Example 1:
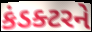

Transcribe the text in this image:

કંડક્ટરને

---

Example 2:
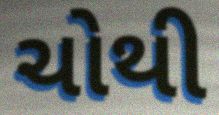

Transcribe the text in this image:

ચોથી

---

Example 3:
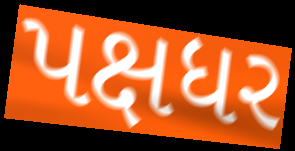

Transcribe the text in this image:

પક્ષધર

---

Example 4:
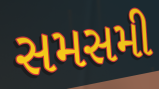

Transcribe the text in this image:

સમસમી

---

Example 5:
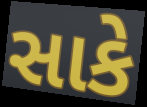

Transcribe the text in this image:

સાકે